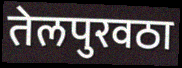
तेलपुरवठा